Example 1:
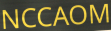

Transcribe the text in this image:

NCCAOM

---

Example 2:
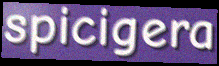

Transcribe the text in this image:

spicigera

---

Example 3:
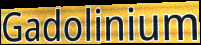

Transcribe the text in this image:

Gadolinium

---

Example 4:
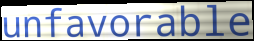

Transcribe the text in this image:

unfavorable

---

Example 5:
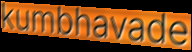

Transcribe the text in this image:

kumbhavade